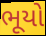
ભૂયો